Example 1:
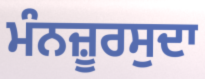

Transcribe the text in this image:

ਮੰਨਜ਼ੂਰਸੁਦਾ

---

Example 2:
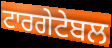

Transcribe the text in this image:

ਟਾਰਗੇਟੇਬਲ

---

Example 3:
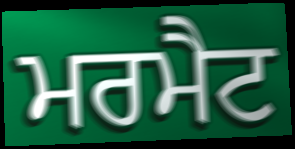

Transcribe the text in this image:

ਮਰਮੈਟ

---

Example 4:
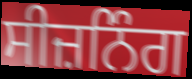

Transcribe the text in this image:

ਸੀਜ਼ਨਿੰਗ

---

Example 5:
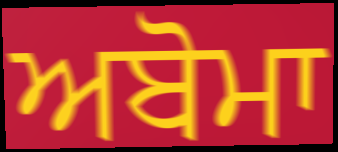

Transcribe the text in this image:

ਅਬੋਮਾ